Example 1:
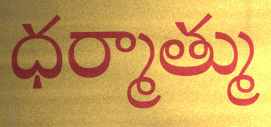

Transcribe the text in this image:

ధర్మాత్ము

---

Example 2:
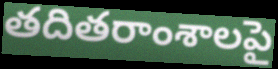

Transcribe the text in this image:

తదితరాంశాలపై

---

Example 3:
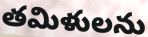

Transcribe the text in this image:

తమిళులను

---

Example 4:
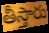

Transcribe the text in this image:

తీస్తారు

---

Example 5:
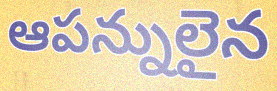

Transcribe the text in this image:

ఆపన్నులైన